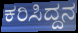
ಕರಿಸಿದ್ದನ